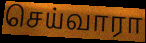
செய்வாரா